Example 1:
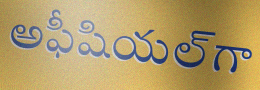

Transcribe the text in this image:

అఫీషియల్‌గా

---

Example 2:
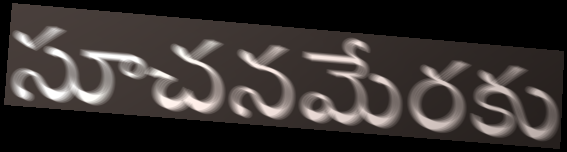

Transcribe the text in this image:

సూచనమేరకు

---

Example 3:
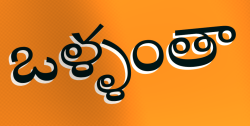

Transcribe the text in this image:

ఒళ్ళంతా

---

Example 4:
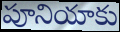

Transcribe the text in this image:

పూనియాకు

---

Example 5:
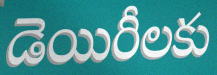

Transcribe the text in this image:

డెయిరీలకు